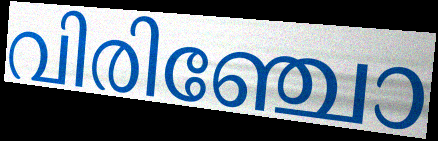
വിരിഞ്ചോ